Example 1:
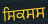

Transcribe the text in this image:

ਸਿਕਸਸ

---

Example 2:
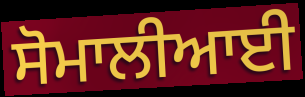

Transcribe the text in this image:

ਸੋਮਾਲੀਆਈ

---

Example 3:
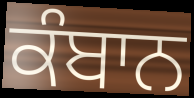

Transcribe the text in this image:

ਕੰਬਾਨ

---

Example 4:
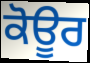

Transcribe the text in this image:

ਕੋਊਰ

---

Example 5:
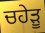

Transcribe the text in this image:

ਚਹੇਡ਼ੂ